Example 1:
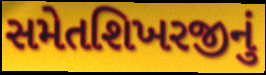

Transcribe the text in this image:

સમેતશિખરજીનું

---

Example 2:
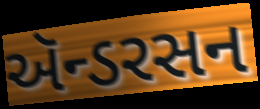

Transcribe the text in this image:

ઍન્ડરસન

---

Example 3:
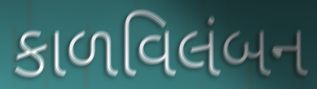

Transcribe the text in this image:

કાળવિલંબન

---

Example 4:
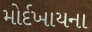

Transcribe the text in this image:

મોર્દખાયના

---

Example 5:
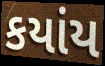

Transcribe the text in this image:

કયાંય